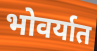
भोवर्यात